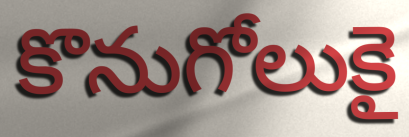
కొనుగోలుకై